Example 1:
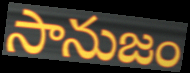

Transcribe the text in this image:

సానుజం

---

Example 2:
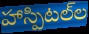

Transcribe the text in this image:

హాస్పిటల్‌ల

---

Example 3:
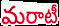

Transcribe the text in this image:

మరాటీ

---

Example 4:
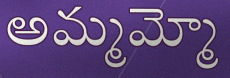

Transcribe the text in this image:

అమ్మమ్మో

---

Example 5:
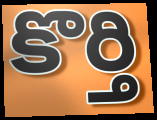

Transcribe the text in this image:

కొర్తి